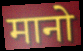
मानो